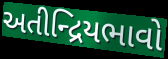
અતીન્દ્રિયભાવો